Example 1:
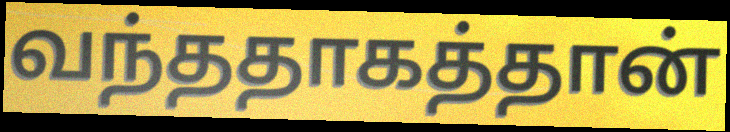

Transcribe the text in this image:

வந்ததாகத்தான்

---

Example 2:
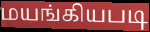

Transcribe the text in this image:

மயங்கியபடி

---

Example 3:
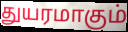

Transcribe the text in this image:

துயரமாகும்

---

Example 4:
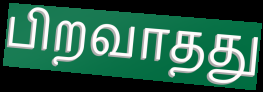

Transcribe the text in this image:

பிறவாதது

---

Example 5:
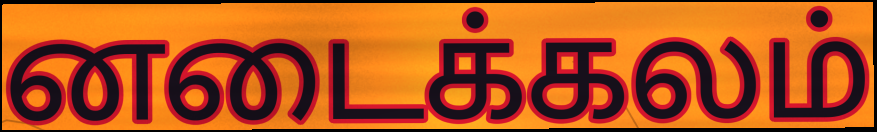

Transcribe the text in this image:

னடைக்கலம்